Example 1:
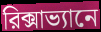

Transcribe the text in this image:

রিক্সাভ্যানে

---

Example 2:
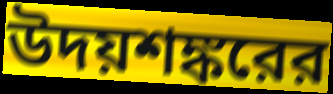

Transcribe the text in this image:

উদয়শঙ্করের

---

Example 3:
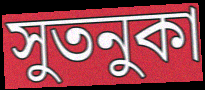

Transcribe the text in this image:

সুতনুকা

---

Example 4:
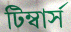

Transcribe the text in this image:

টিম্বার্স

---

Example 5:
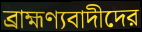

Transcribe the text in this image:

ব্রাহ্মণ্যবাদীদের